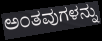
ಅಂತವುಗಳನ್ನು